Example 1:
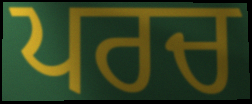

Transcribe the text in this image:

ਪਰਚ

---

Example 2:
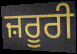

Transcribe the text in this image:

ਜ਼ਰੂਰੀ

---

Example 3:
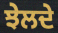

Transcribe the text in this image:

ਝੇਲਦੇ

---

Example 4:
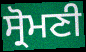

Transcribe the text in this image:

ਸ੍ਰੋਮਣੀ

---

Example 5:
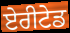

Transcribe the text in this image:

ਏਰੀਟੇਡ